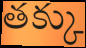
తక్కు